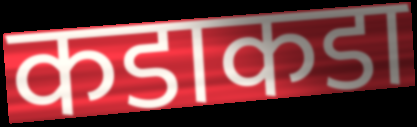
कडाकडा